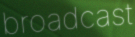
broadcast